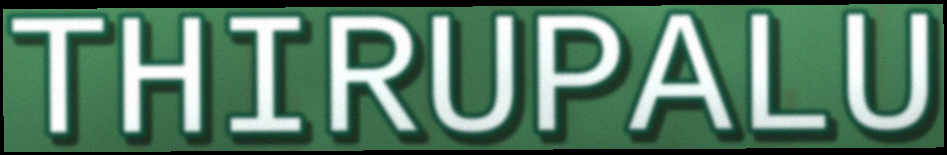
THIRUPALU